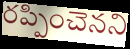
రప్పించెనని